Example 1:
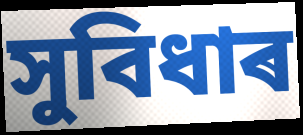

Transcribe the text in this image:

সুবিধাৰ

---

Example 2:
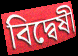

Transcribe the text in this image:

বিদ্বেষী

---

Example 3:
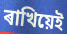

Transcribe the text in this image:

ৰাখিয়েই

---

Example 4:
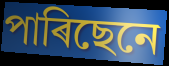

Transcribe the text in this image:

পাৰিছেনে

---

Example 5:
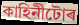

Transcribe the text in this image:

কাহিনীটোৰ